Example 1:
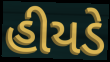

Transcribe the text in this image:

હીયડે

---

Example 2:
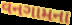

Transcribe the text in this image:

વનગામના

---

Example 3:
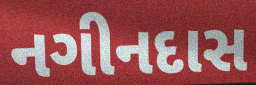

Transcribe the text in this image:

નગીનદાસ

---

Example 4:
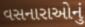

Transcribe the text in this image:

વસનારાઓનું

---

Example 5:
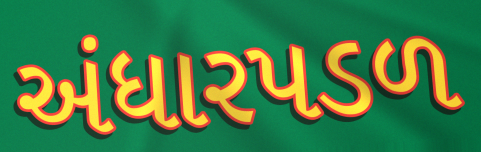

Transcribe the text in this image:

અંધારપડળ